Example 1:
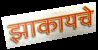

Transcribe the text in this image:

झाकायचे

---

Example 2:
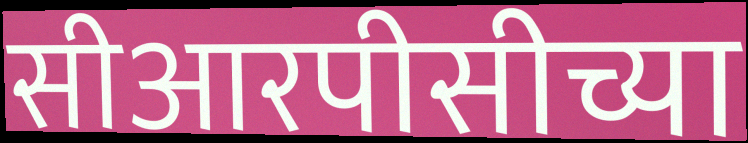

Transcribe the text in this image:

सीआरपीसीच्या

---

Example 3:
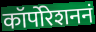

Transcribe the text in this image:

कॉर्पोरेशननं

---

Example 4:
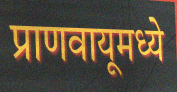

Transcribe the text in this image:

प्राणवायूमध्ये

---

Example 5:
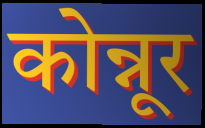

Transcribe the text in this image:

कोन्नूर